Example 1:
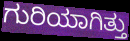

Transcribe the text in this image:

ಗುರಿಯಾಗಿತ್ತು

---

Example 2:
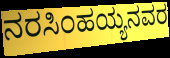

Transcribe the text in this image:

ನರಸಿಂಹಯ್ಯನವರ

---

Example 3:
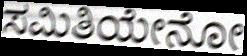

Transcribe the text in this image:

ಸಮಿತಿಯೇನೋ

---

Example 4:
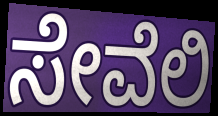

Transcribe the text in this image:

ಸೇವೆಲಿ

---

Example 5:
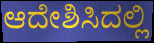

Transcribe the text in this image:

ಆದೇಶಿಸಿದಲ್ಲಿ